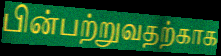
பின்பற்றுவதற்காக